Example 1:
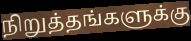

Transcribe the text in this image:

நிறுத்தங்களுக்கு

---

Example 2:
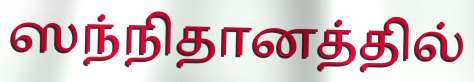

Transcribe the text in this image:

ஸந்நிதானத்தில்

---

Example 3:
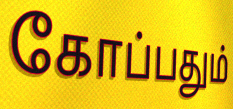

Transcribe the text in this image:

கோப்பதும்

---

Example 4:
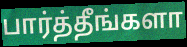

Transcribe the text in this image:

பார்த்தீங்களா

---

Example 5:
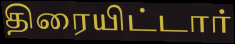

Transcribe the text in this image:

திரையிட்டார்